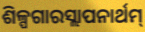
ଶିଳ୍ପଗାରସ୍ଲାପନାର୍ଥମ୍